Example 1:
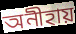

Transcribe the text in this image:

অনীহায়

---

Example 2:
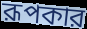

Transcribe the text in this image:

রূপকার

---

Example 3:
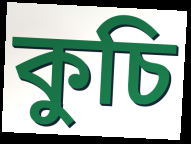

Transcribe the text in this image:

কুচি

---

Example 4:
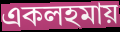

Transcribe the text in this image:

একলহমায়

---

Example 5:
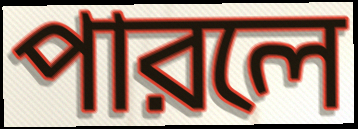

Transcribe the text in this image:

পারলে